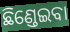
ଛିଣ୍ଡେଇବା